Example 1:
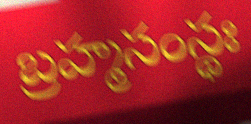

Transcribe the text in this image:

బ్రహ్మసంస్థః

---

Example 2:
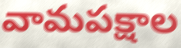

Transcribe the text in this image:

వామపక్షాల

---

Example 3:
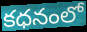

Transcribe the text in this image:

కధనంలో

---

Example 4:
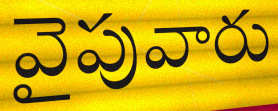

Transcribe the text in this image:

వైపువారు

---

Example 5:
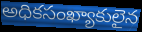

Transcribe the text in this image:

అధికసంఖ్యాకులైన